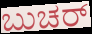
ಬುಚರ್